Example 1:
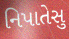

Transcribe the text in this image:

નિપાતેસુ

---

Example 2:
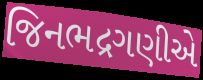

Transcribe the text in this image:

જિનભદ્રગણીએ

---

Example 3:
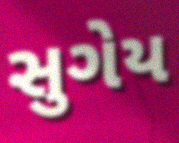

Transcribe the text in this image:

સુગેય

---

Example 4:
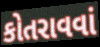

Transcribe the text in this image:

કોતરાવવાં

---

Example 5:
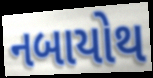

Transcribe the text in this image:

નબાયોથ